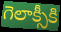
గెలాక్సీకి